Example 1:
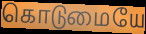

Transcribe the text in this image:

கொடுமையே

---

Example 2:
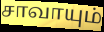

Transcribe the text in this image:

சாவாயும்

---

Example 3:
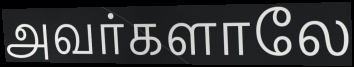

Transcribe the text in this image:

அவர்களாலே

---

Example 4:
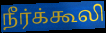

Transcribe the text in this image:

நீர்க்கூலி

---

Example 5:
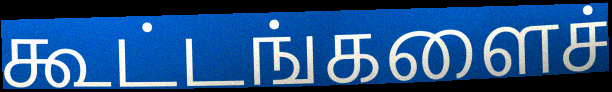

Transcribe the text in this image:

கூட்டங்களைச்